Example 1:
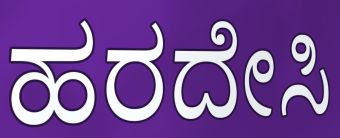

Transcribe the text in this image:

ಹರದೇಸಿ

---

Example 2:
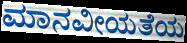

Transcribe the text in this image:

ಮಾನವೀಯತೆಯ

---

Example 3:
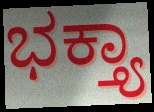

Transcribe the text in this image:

ಭಕ್ತ್ಯಾ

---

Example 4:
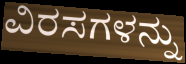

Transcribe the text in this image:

ವಿರಸಗಳನ್ನು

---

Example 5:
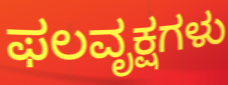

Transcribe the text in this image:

ಫಲವೃಕ್ಷಗಳು